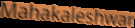
Mahakaleshwar